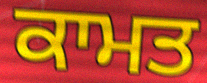
ਕਾਮਤ